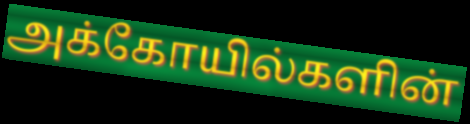
அக்கோயில்களின்